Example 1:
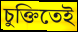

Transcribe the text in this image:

চুক্তিতেই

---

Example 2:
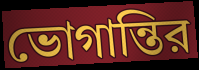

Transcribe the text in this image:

ভোগান্তির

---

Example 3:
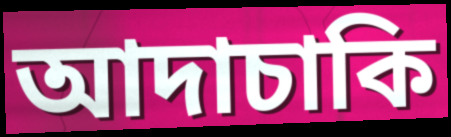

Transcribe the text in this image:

আদাচাকি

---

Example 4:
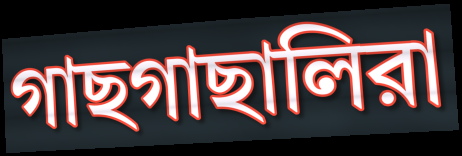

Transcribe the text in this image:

গাছগাছালিরা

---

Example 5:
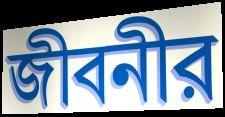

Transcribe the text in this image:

জীবনীর